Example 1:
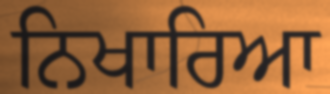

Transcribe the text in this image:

ਨਿਖਾਰਿਆ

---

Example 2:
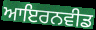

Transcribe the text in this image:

ਆਇਰਨਵੀਡ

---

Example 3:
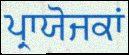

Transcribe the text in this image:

ਪ੍ਰਾਯੋਜਕਾਂ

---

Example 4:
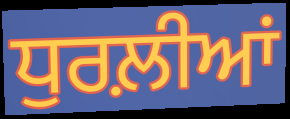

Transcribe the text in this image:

ਧੁਰਲ਼ੀਆਂ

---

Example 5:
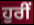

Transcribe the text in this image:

ਹੁਰੀਂ